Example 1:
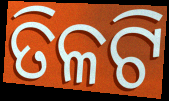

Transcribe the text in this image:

ତିଳଟି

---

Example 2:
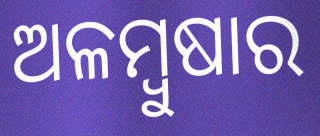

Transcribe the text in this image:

ଅଳମ୍ବୁଷାର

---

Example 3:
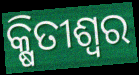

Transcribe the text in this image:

କ୍ଷିତୀଶ୍ୱର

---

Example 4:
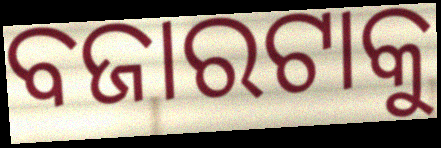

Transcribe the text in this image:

ବଜାରଟାକୁ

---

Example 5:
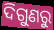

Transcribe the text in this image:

ଦିଗୁଣରୁ